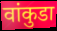
वांकुडा